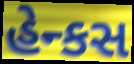
હેન્કસ